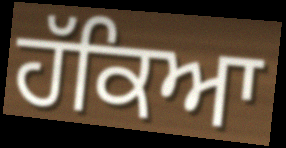
ਹੱਕਿਆ